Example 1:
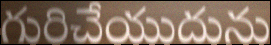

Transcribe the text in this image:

గురిచేయుదును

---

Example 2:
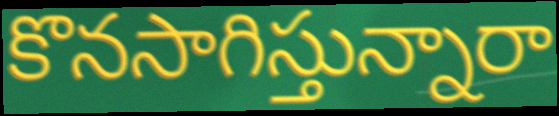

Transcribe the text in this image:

కొనసాగిస్తున్నారా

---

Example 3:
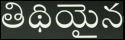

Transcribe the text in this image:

తిథియైన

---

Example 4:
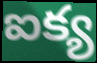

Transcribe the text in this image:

ఐక్య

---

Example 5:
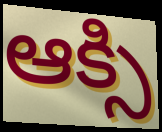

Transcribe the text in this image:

ఆక్సి